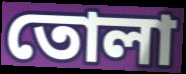
তোলা